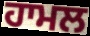
ਹਾਮਲ